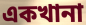
একখানা